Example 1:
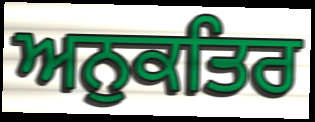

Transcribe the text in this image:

ਅਨੁਕਤਿਰ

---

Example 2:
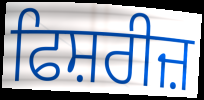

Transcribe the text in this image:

ਫਿਸ਼ਰੀਜ਼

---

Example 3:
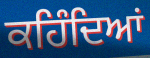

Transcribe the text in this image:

ਕਹਿੰਦਿਆਂ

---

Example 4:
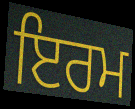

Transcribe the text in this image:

ਇਰਮ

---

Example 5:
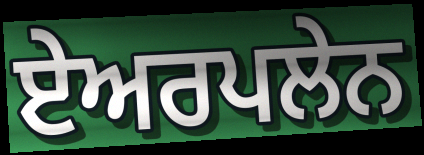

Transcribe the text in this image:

ਏਅਰਪਲੇਨ